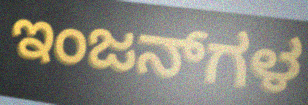
ಇಂಜನ್‌ಗಳ